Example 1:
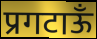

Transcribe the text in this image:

प्रगटाऊँ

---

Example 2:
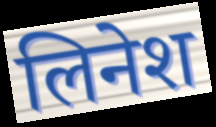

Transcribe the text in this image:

लिनेश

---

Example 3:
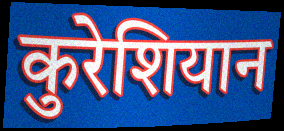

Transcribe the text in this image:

कुरेशियान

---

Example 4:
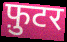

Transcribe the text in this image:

फ़ुटर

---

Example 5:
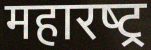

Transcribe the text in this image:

महारष्ट्र